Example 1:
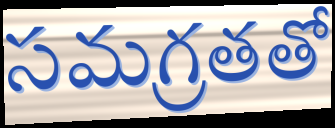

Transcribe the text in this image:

సమగ్రతతో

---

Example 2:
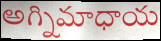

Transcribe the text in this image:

అగ్నిమాధాయ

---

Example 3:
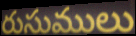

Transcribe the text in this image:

రుసుములు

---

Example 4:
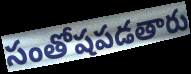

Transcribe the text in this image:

సంతోషపడతారు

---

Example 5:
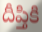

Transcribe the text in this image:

దీప్తికి